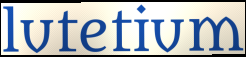
lutetium